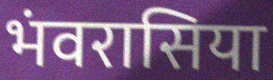
भंवरासिया